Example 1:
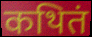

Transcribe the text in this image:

कथितं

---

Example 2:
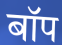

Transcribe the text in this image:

बॉप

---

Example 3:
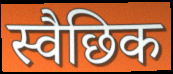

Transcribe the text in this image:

स्वैछिक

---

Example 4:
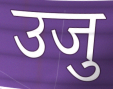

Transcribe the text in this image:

उजु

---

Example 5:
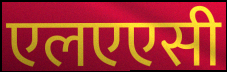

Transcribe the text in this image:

एलएएसी